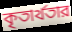
কৃতার্থতার